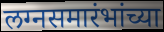
लग्नसमारंभांच्या